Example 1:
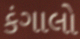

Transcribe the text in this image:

કંગાલો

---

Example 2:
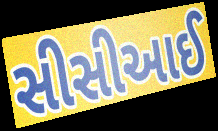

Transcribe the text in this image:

સીસીઆઈ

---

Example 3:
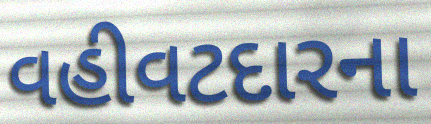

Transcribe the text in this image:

વહીવટદારના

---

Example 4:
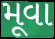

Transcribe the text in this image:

મૂવા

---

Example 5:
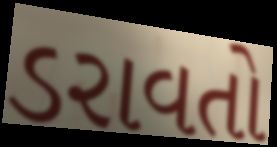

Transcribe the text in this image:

ડરાવતો